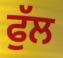
ਫੁੱਲ